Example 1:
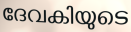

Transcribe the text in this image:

ദേവകിയുടെ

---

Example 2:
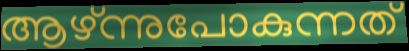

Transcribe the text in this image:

ആഴ്ന്നുപോകുന്നത്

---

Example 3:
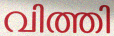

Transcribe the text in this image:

വിത്തി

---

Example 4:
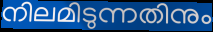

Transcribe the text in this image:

നിലമിടുന്നതിനും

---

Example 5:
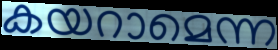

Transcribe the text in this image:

കയറാമെന്ന